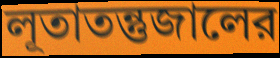
লূতাতন্তুজালের